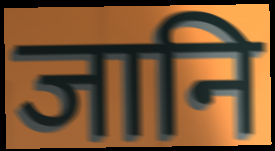
जानि